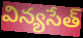
విన్యసేత్